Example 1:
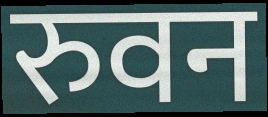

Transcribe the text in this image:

रुवन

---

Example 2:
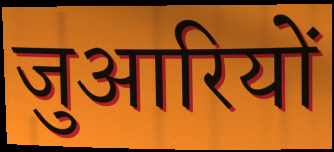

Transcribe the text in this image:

जुआरियों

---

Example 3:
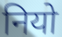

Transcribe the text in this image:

नियो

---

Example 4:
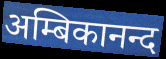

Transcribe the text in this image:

अम्बिकानन्द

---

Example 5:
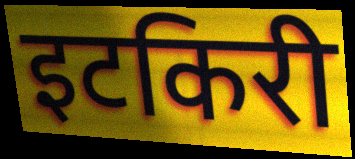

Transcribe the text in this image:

इटकिरी